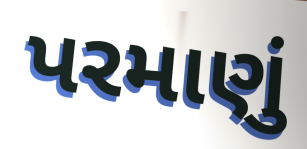
પરમાણું